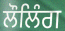
ਲੌਲਿੰਗ